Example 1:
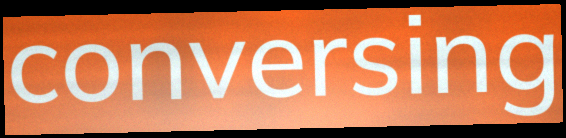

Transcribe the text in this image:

conversing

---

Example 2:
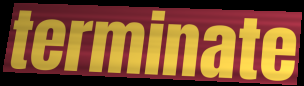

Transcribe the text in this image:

terminate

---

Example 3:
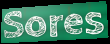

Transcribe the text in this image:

Sores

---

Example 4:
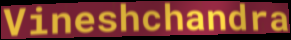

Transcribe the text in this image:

Vineshchandra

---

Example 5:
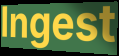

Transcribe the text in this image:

Ingest